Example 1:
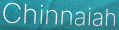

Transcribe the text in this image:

Chinnaiah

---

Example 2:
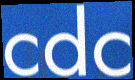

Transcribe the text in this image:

cdc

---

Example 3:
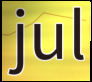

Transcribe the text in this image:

jul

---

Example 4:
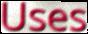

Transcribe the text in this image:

Uses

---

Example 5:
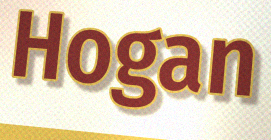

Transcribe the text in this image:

Hogan